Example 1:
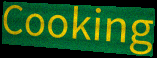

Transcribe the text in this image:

Cooking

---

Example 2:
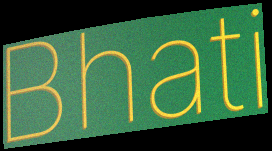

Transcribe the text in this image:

Bhati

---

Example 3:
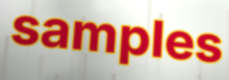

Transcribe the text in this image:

samples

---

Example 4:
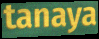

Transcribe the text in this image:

tanaya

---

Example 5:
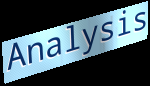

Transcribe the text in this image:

Analysis